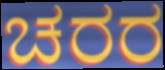
ಚರರ